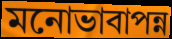
মনোভাবাপন্ন